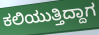
ಕಲಿಯುತ್ತಿದ್ದಾಗ